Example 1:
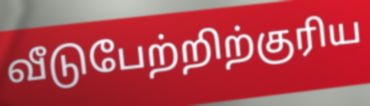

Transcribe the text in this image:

வீடுபேற்றிற்குரிய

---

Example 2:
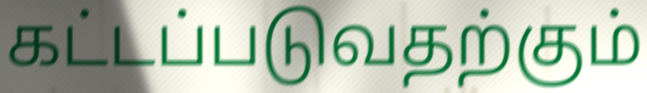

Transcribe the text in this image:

கட்டப்படுவதற்கும்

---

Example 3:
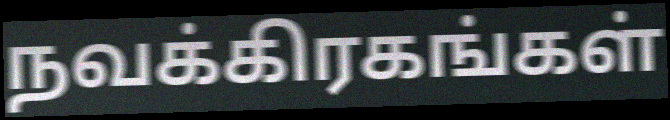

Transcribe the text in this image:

நவக்கிரகங்கள்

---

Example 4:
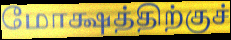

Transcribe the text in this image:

மோக்ஷத்திற்குச்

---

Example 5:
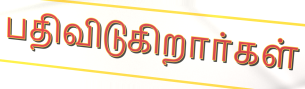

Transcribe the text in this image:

பதிவிடுகிறார்கள்